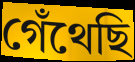
গেঁথেছি